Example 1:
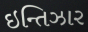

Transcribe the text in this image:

ઇન્તિઝાર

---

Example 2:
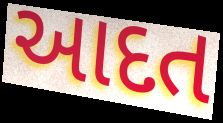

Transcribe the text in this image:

આદત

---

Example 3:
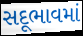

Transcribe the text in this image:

સદૂભાવમાં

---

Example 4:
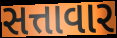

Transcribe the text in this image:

સત્તાવાર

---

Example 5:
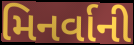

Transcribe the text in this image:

મિનર્વાની